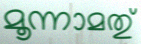
മൂന്നാമതു്